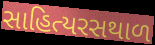
સાહિત્યરસથાળ